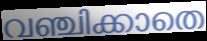
വഞ്ചിക്കാതെ